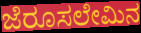
ಜೆರೂಸಲೇಮಿನ